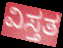
ವಿಸ್ತತ